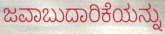
ಜವಾಬುದಾರಿಕೆಯನ್ನು